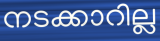
നടക്കാറില്ല